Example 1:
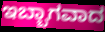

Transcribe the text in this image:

ಇಬ್ಬಾಗವಾದ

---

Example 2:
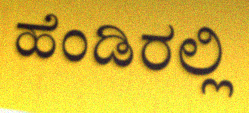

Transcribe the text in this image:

ಹೆಂಡಿರಲ್ಲಿ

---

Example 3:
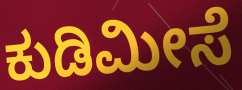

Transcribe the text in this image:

ಕುಡಿಮೀಸೆ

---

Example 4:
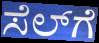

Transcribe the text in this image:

ಸೆಲ್‍ಗೆ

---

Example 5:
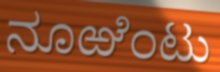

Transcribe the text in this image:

ನೂಱೆಂಟು